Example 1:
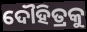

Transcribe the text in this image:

ଦୌହିତ୍ରକୁ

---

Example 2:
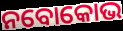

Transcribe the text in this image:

ନବୋକୋଭ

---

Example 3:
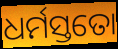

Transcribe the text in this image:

ଧର୍ମସ୍ତତୋ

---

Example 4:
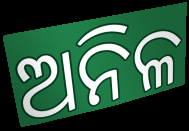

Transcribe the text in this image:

ଅନିଳ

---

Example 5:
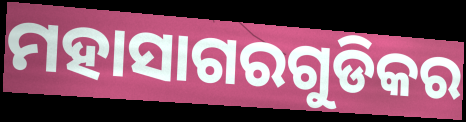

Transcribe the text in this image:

ମହାସାଗରଗୁଡିକର